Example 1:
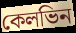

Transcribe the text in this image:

কেলভিন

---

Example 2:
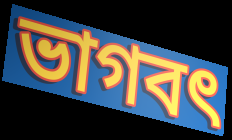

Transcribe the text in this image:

ভাগবৎ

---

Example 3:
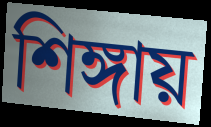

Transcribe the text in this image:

শিঙ্গায়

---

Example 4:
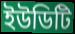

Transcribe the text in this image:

ইউডিটি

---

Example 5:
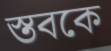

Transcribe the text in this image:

স্তবকে